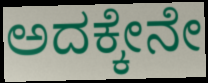
ಅದಕ್ಕೇನೇ